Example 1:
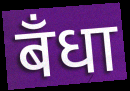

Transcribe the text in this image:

बँधा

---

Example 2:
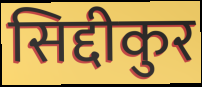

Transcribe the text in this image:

सिद्दीकुर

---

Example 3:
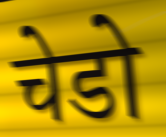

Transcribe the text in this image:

चेडो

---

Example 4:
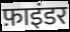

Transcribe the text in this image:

फ़ाइंडर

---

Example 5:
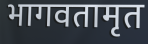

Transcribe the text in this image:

भागवतामृत